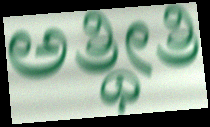
ಅತ್ಥೀತಿ